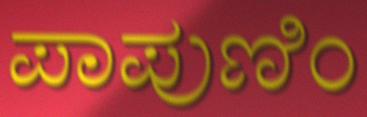
ಪಾಪುಣಿಂ